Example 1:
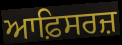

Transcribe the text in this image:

ਆਫ਼ਿਸਰਜ਼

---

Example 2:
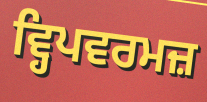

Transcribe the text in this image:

ਵ੍ਹਿਪਵਰਮਜ਼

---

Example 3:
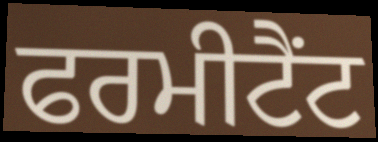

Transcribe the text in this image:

ਫਰਮੀਟੈਂਟ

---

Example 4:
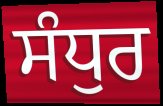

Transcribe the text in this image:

ਸੰਧੁਰ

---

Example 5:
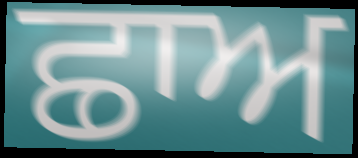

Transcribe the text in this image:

ਛਾਅ